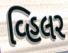
વ્હિલર